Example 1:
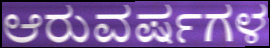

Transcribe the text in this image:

ಆರುವರ್ಷಗಳ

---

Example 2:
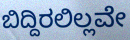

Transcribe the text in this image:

ಬಿದ್ದಿರಲಿಲ್ಲವೇ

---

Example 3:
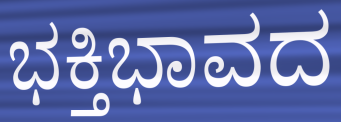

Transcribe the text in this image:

ಭಕ್ತಿಭಾವದ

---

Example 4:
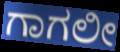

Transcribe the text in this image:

ಗಾಗಲೀ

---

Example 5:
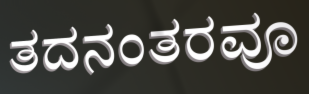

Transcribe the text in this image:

ತದನಂತರವೂ